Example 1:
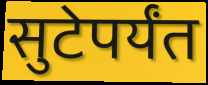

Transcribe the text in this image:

सुटेपर्यंत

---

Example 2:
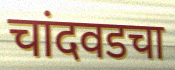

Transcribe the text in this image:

चांदवडचा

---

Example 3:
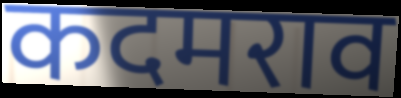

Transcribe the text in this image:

कदमराव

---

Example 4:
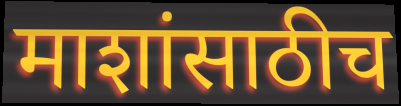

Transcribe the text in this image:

माशांसाठीच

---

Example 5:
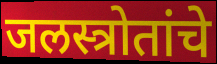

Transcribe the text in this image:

जलस्त्रोतांचे